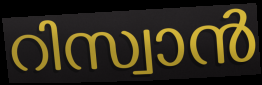
റിസ്വാൻ